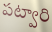
పట్వారి